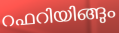
റഫറിയിങ്ങും